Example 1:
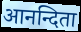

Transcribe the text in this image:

आनन्दिता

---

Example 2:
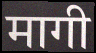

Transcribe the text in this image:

मागी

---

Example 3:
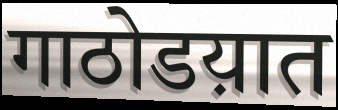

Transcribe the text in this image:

गाठोडय़ात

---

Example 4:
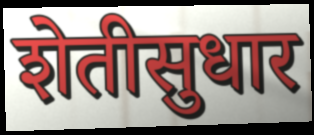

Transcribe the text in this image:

शेतीसुधार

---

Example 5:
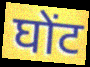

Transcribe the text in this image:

घोंट